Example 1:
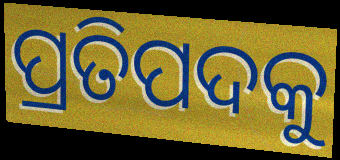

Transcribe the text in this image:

ପ୍ରତିପଦକୁ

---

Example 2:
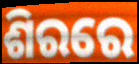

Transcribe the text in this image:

ଶିରରେ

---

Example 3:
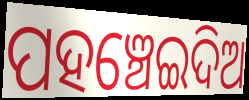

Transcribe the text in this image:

ପହଞ୍ଚେଇଦିଅ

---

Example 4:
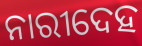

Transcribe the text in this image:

ନାରୀଦେହ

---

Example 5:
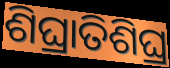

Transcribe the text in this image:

ଶିଘ୍ରାତିଶିଘ୍ର